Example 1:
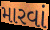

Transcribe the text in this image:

મારવાં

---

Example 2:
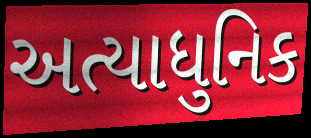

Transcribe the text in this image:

અત્યાધુનિક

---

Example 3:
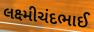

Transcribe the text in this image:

લક્ષ્મીચંદભાઈ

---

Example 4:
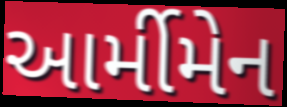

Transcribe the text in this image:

આર્મીમેન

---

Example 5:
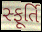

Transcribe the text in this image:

સ્ફૂર્તિ